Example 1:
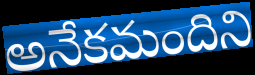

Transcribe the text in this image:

అనేకమందిని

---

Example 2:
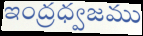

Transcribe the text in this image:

ఇంద్రధ్వజము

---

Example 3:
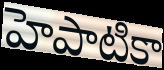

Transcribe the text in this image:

హెపాటికా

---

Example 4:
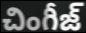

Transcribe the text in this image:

చింగీజ్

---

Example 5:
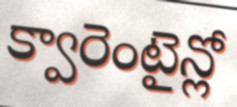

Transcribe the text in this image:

క్వారెంటైన్లో